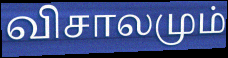
விசாலமும்